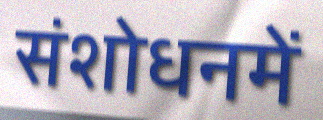
संशोधनमें